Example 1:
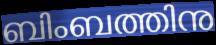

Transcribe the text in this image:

ബിംബത്തിനു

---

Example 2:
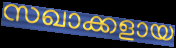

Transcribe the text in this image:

സഖാക്കളായ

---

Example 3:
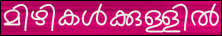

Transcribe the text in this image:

മിഴികൾക്കുള്ളിൽ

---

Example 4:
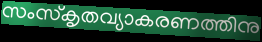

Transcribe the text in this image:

സംസ്കൃതവ്യാകരണത്തിനു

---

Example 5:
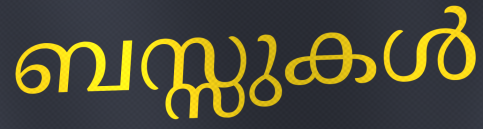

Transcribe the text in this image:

ബസ്സുകൾ